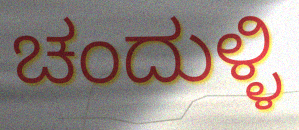
ಚಂದುಳ್ಳಿ